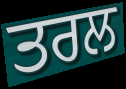
ਤਰਲ